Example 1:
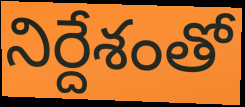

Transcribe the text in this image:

నిర్దేశంతో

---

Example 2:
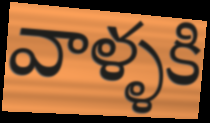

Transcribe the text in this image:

వాళ్ళకి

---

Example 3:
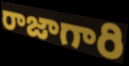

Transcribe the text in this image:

రాజాగారి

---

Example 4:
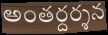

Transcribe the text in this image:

అంతర్దర్శన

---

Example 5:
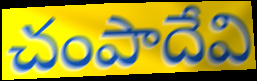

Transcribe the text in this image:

చంపాదేవి